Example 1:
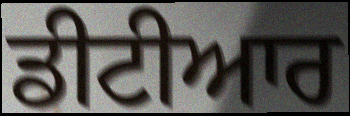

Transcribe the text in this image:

ਡੀਟੀਆਰ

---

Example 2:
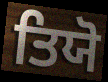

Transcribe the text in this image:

ਤਿਯੋ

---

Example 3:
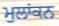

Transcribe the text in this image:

ਮੁਲਾਂਕਨ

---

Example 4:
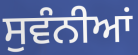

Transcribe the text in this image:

ਸੁਵੰਨੀਆਂ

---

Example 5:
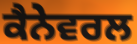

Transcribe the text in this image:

ਕੈਨੇਵਰਲ